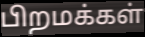
பிறமக்கள்